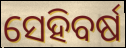
ସେହିବର୍ଷ